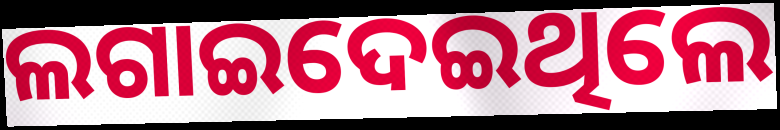
ଲଗାଇଦେଇଥିଲେ